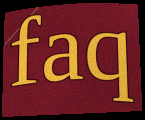
faq